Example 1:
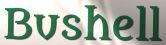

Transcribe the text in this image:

Bushell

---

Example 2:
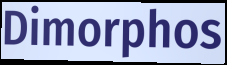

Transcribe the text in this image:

Dimorphos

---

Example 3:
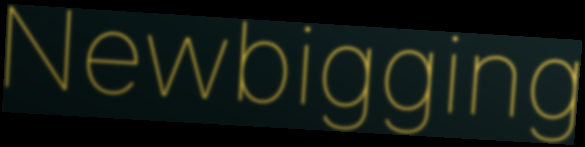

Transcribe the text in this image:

Newbigging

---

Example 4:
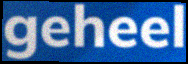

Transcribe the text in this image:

geheel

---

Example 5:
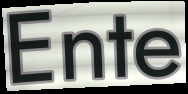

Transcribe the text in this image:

Ente